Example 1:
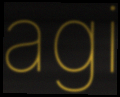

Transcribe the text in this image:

agi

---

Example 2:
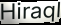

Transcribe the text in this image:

Hiraql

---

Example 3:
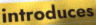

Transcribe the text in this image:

introduces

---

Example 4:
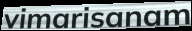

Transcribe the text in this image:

vimarisanam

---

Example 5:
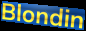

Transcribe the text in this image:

Blondin